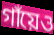
গাঁয়েও